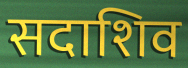
सदाशिव